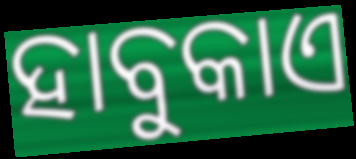
ହାବୁକାଏ